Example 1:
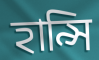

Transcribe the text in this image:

হান্সি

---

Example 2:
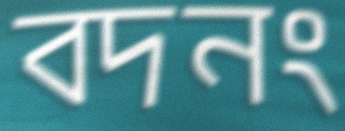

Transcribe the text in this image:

বদনং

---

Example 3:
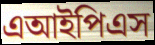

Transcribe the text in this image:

এআইপিএস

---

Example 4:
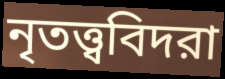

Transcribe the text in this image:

নৃতত্ত্ববিদরা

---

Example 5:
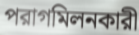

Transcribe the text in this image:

পরাগমিলনকারী